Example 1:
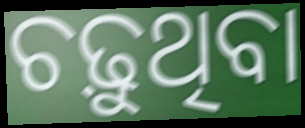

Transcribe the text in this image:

ଚଢ଼ୁଥିବା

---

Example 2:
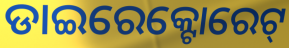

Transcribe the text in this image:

ଡାଇରେକ୍ଟୋରେଟ୍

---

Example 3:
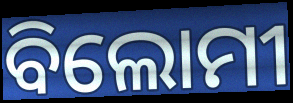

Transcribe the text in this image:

ବିଲୋମୀ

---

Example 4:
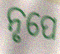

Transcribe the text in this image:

ନୃପେ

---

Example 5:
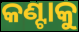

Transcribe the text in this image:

କଣ୍ଟାକୁ